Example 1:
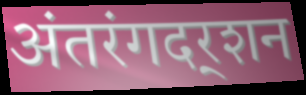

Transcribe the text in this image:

अंतरंगदर्शन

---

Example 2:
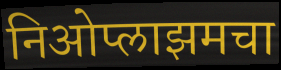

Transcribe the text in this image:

निओप्लाझमचा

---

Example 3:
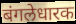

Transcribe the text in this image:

बंगलेधारक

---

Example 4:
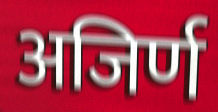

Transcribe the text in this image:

अजिर्ण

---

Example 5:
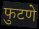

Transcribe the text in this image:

फुटणे